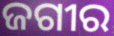
ଜଗୀର